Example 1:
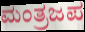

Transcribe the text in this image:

ಮಂತ್ರಜಪ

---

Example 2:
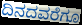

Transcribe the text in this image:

ದಿನದವರೆಗೂ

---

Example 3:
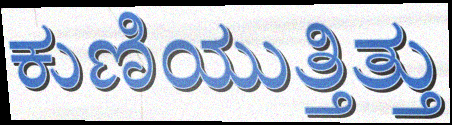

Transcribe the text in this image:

ಕುಣಿಯುತ್ತಿತ್ತು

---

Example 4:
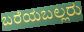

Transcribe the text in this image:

ಬರೆಯಬಲ್ಲರು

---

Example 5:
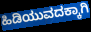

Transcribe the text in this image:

ಹಿಡಿಯುವದಕ್ಕಾಗಿ